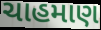
ચાહમાણ